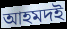
আহমদই